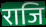
राजि